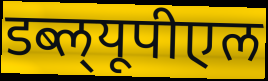
डब्ल्यूपीएल